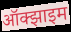
ऑक्झाइम